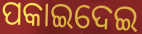
ପକାଇଦେଇ